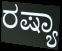
ರಷ್ಯಾ